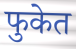
फुकेत